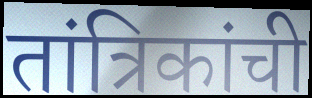
तांत्रिकांची